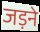
जड़ने